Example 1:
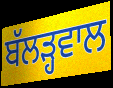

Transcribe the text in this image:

ਬੱਲੜ੍ਹਵਾਲ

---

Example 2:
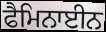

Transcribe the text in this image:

ਫੈਮਿਨਾਈਨ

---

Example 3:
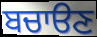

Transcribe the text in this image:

ਬਚਾੳਣ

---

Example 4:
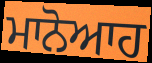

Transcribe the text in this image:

ਮਾਨੋਆਹ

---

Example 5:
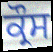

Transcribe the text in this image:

ਕ੍ਰੌਸ